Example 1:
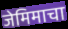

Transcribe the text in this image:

जेमिमाचा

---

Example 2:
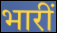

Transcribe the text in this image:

भारीं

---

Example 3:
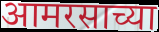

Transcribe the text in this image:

आमरसाच्या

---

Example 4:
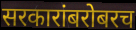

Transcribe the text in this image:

सरकारांबरोबरच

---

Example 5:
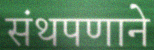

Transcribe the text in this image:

संथपणाने